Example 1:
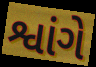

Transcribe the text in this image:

શ્વાંગે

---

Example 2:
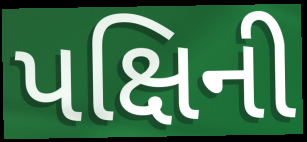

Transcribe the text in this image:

પક્ષિની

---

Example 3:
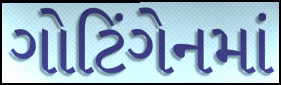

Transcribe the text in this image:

ગોટિંગેનમાં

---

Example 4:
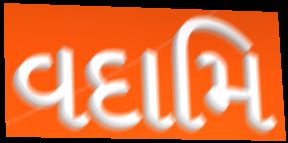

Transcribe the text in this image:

વદામિ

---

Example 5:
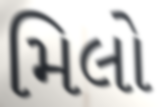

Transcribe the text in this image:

મિલો